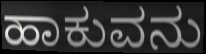
ಹಾಕುವನು